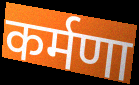
कर्मणा